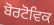
ਬੋਰਟੋਵਿਕ